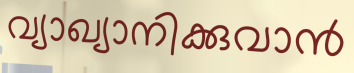
വ്യാഖ്യാനിക്കുവാൻ